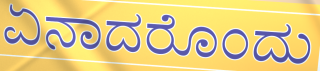
ಏನಾದರೊಂದು